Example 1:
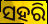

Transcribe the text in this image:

ସହରି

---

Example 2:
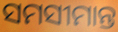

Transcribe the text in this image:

ସମସୀମାନ୍ତ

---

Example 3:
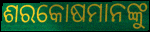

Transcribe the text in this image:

ଶରକୋଷମାନଙ୍କୁ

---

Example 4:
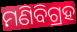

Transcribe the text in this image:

ମଣିବିଗ୍ରହ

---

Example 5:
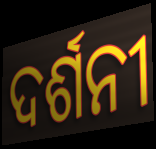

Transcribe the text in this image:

ଦର୍ଶନୀ